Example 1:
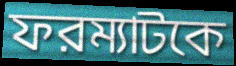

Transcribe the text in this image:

ফরম্যাটকে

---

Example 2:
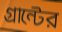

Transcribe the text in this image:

গ্রান্টের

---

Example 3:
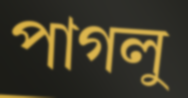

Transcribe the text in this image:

পাগলু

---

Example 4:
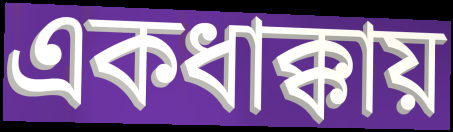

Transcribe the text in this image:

একধাক্কায়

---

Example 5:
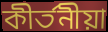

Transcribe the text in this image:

কীর্তনীয়া